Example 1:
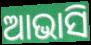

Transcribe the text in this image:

ଆଭାସି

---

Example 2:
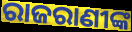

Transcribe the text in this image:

ରାଜରାଣୀଙ୍କ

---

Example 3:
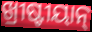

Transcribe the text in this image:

ଖ୍ରୀଷ୍ଟୀୟାନ୍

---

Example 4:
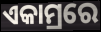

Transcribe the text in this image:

ଏକାମ୍ରରେ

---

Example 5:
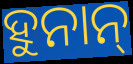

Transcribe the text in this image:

ହୁନାନ୍